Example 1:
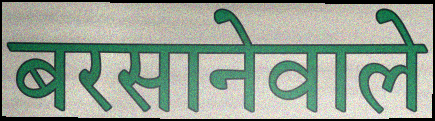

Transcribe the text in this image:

बरसानेवाले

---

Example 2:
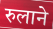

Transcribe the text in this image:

रुलाने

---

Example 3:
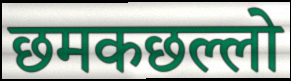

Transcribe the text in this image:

छमकछल्लो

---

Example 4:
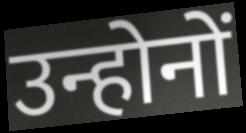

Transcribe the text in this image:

उन्होनों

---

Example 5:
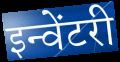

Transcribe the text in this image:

इन्वेंटरी